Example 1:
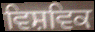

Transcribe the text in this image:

ਵਿਸ਼ਵਿਕ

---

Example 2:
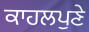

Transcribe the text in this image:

ਕਾਹਲਪੁਣੇ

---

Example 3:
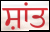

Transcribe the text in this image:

ਸ਼ਾਂਤ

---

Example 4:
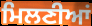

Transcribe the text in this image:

ਮਿਲਣੀਆਂ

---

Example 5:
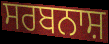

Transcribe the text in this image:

ਸਰਬਨਾਸ਼